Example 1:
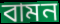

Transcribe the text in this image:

বামন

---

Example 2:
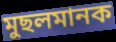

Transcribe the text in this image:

মুছলমানক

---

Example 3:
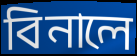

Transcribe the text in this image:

বিনালে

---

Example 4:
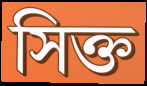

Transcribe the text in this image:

সিক্ত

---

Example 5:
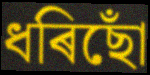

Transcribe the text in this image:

ধৰিছোঁ